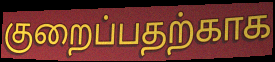
குறைப்பதற்காக